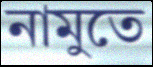
নামুতে